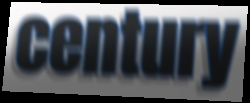
century